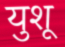
युशू